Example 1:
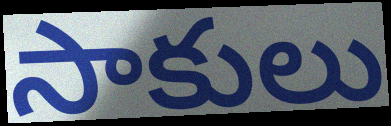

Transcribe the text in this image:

సాకులు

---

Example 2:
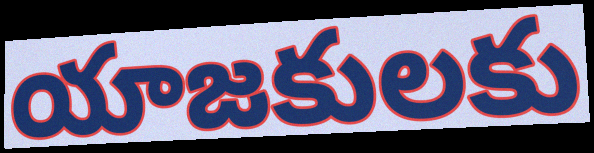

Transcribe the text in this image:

యాజకులకు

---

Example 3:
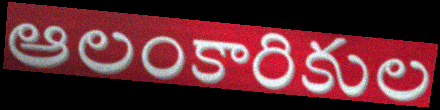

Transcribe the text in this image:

ఆలంకారికుల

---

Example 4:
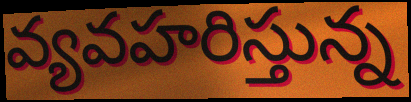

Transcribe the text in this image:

వ్యవహరిస్తున్న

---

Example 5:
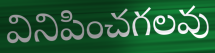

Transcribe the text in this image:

వినిపించగలవు